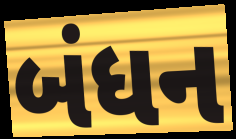
બંધન